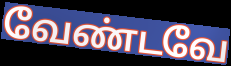
வேண்டவே